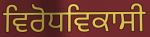
ਵਿਰੋਧਵਿਕਾਸੀ